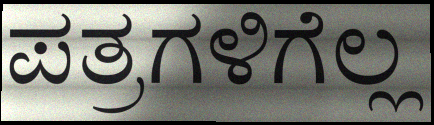
ಪತ್ರಗಳಿಗೆಲ್ಲ